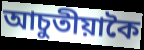
আচুতীয়াকৈ